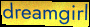
dreamgirl